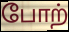
போற்